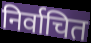
निर्वाचित